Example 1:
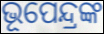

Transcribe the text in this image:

ଭୂପେନ୍ଦ୍ରଙ୍କ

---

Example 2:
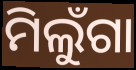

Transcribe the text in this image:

ମିଲୁଁଗା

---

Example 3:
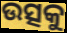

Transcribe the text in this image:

ଉତ୍ସକୁ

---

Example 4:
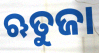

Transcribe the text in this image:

ଋତୁଜା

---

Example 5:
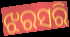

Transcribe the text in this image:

ଝରସରି